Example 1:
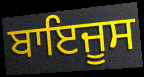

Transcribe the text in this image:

ਬਾਇਜੂਸ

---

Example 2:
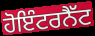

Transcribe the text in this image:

ਹੋਇੰਟਰਨੈੱਟ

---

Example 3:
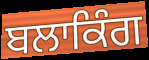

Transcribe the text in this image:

ਬਲਾਕਿੰਗ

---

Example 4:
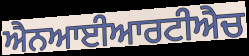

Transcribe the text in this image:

ਐਨਆਈਆਰਟੀਐਚ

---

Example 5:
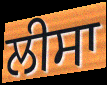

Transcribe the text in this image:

ਲੀਸਾ